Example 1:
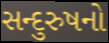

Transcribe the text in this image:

સન્દુરુષનો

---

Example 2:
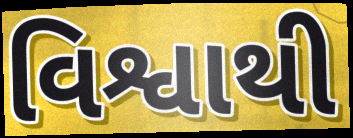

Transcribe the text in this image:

વિશ્વાથી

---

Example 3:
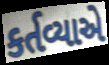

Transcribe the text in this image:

કર્તવ્યાએ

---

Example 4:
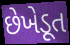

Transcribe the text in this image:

છેખેડૂત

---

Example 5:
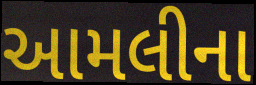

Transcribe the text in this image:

આમલીના